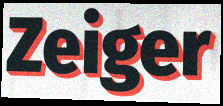
Zeiger